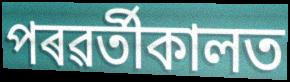
পৰৱৰ্তীকালত